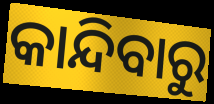
କାନ୍ଦିବାରୁ